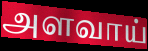
அளவாய்